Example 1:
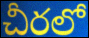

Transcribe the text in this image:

చీరలో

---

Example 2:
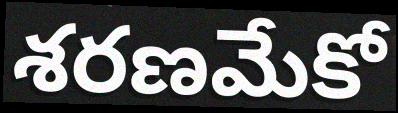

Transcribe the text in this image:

శరణమేకో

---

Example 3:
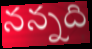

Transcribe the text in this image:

నన్నది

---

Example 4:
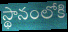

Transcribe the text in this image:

స్థానంలోకి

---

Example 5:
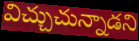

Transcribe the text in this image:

విచ్చుచున్నాడని